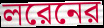
লরেনের